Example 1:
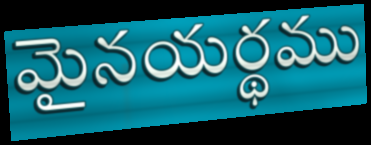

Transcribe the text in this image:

మైనయర్థము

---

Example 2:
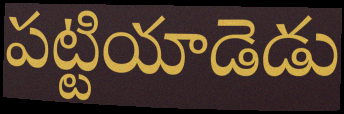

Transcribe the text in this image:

పట్టియాడెడు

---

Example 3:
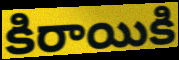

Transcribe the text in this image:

కిరాయికి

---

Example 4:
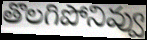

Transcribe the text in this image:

తొలగిపోనివ్వు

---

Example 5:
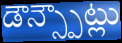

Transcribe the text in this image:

డౌన్స్పౌట్లు